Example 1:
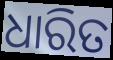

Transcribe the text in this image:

ଧାରିତ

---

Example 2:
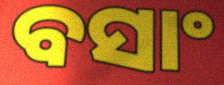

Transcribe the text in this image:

ବସାଂ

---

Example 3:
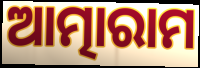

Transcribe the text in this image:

ଆତ୍ମାରାମ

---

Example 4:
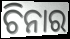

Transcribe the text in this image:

ଚିନାର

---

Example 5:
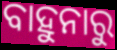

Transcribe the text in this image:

ବାହୁନାରୁ